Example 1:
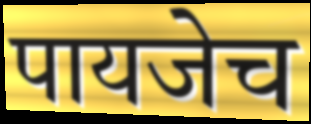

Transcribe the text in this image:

पायजेच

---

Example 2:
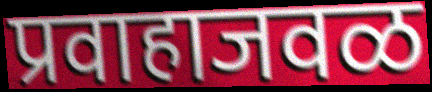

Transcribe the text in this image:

प्रवाहाजवळ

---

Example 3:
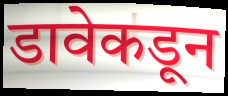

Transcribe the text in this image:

डावेकडून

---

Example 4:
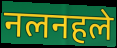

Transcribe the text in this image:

नलनहले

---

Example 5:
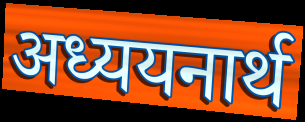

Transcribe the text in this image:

अध्ययनार्थ